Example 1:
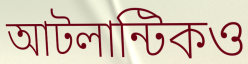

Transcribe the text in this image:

আটলান্টিকও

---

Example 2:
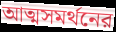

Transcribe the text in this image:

আত্মসমর্থনের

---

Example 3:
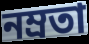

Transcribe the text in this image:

নম্রতা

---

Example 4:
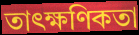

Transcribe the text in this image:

তাৎক্ষণিকতা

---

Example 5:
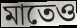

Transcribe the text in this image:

মাতেও